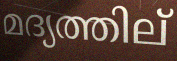
മദ്യത്തില്